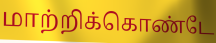
மாற்றிக்கொண்டே